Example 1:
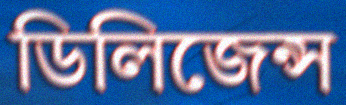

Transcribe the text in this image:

ডিলিজেন্স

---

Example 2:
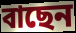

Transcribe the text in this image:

বাছেন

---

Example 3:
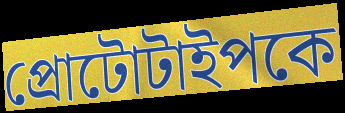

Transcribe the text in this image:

প্রোটোটাইপকে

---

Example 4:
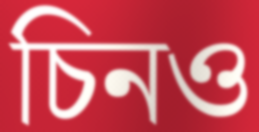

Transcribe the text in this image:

চিনও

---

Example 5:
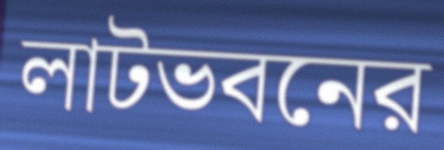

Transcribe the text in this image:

লাটভবনের